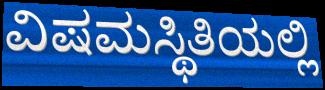
ವಿಷಮಸ್ಥಿತಿಯಲ್ಲಿ